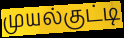
முயல்குட்டி